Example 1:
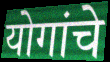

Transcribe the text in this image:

योगांचे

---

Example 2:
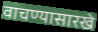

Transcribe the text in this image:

वाचण्यासारखे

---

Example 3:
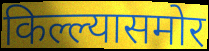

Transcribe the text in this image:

किल्ल्यासमोर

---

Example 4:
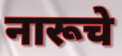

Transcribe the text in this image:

नारूचे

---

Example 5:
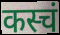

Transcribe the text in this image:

कस्चं